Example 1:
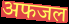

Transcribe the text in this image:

अफजल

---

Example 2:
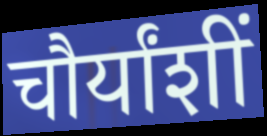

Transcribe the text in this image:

चौर्यांशीं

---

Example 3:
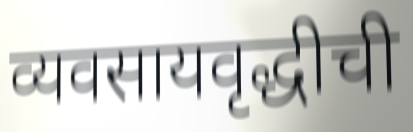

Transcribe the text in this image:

व्यवसायवृद्धीची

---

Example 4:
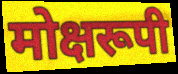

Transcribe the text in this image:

मोक्षरूपी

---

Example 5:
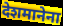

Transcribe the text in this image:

देशमानेना